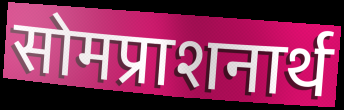
सोमप्राशनार्थ